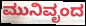
ಮುನಿವೃಂದ